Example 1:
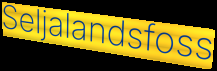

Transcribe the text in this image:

Seljalandsfoss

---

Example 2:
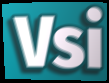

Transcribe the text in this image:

Vsi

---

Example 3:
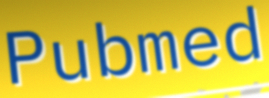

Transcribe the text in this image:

Pubmed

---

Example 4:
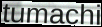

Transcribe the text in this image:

tumachi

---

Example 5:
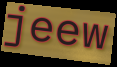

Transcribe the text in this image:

jeew